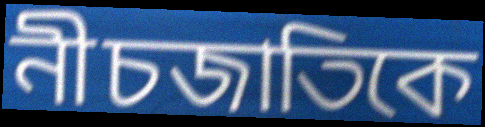
নীচজাতিকে